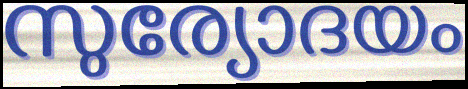
സുര്യോദയം